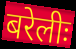
बरेलीः